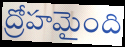
ద్రోహమైంది